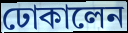
ঢোকালেন